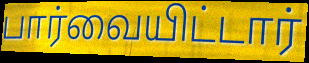
பார்வையிட்டார்